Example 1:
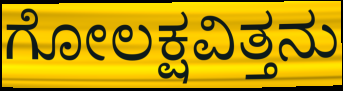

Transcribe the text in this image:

ಗೋಲಕ್ಷವಿತ್ತನು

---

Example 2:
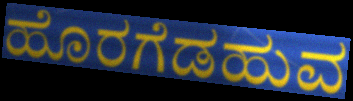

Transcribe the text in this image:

ಹೊರಗೆಡಹುವ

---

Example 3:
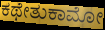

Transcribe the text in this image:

ಕಥೇತುಕಾಮೋ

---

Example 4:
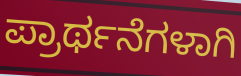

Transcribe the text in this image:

ಪ್ರಾರ್ಥನೆಗಳಾಗಿ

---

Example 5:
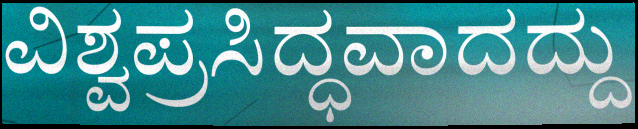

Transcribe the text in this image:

ವಿಶ್ವಪ್ರಸಿದ್ಧವಾದದ್ದು